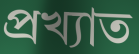
প্ৰখ্যাত